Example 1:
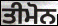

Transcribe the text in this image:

ਤੀਮੋਨ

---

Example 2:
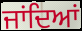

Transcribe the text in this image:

ਜਾਂਦਿਆਂ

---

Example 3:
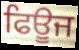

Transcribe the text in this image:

ਫਿਊਜ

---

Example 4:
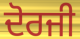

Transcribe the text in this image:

ਦੋਰਜੀ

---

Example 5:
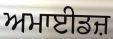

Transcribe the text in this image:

ਅਮਾਈਡਜ਼